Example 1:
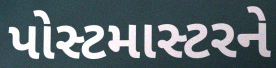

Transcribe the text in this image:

પોસ્ટમાસ્ટરને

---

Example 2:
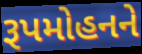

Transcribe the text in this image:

રૂપમોહનને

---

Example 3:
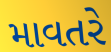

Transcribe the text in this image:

માવતરે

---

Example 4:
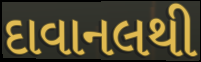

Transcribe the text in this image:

દાવાનલથી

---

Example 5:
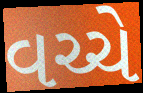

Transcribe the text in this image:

વચ્ચે